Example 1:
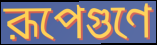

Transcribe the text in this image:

রূপেগুণে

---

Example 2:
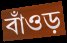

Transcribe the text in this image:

বাঁওড়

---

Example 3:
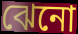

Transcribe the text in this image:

ঝেনো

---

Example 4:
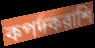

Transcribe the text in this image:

কপর্দকরাশি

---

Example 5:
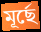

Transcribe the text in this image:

মূর্ছে